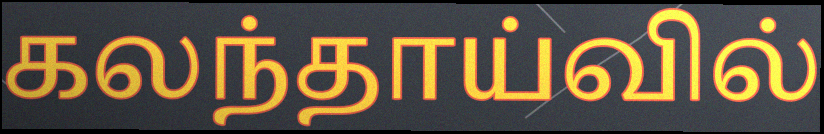
கலந்தாய்வில்